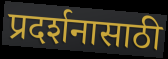
प्रदर्शनासाठी